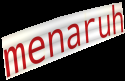
menaruh